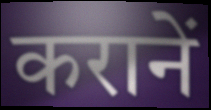
करानें